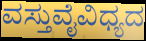
ವಸ್ತುವೈವಿಧ್ಯದ